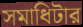
সমাধিটার